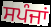
ਸਪੰਜਾਂ